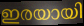
ഇരയായി